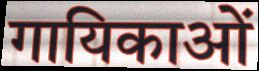
गायिकाओं